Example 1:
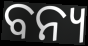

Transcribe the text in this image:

ବନ୍ୟ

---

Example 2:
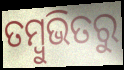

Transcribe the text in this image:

ତମ୍ବୁଭିତରୁ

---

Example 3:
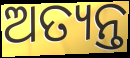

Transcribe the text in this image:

ଅତ୍ୟନ୍ତ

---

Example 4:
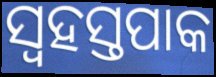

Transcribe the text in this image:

ସ୍ୱହସ୍ତପାକ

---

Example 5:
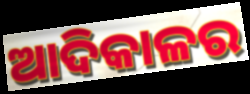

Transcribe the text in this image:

ଆଦିକାଳର